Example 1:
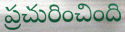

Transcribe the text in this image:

ప్రచురించింది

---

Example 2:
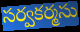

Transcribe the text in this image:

సర్వకర్మసు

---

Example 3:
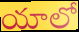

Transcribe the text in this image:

యాలో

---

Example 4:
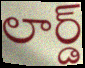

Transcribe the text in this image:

లార్డ్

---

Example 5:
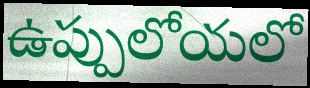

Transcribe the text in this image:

ఉప్పులోయలో